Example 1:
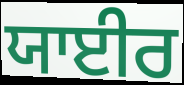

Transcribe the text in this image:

ਯਾਈਰ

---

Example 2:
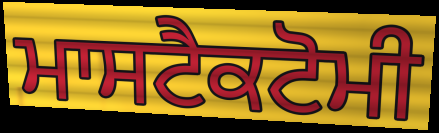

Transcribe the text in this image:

ਮਾਸਟੈਕਟੋਮੀ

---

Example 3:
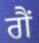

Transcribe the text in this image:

ਗੈਂ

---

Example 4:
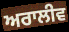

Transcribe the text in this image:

ਅਰਾਲੀਵ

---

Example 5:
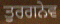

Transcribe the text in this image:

ਤੁਰਗਨੇਵ